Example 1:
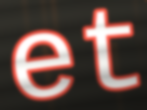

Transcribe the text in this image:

et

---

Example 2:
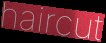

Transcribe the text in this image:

haircut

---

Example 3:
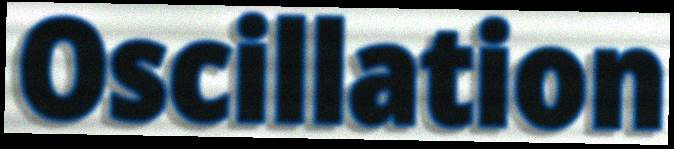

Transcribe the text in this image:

Oscillation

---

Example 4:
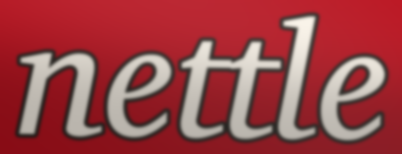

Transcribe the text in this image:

nettle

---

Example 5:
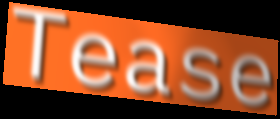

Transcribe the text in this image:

Tease